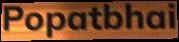
Popatbhai